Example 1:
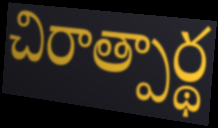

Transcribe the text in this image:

చిరాత్పార్థ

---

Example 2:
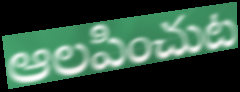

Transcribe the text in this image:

ఆలపించుట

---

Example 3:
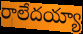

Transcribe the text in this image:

రాలేదయ్యా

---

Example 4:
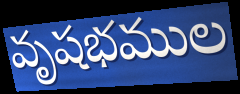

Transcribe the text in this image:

వృషభముల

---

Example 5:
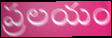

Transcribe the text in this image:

ప్రలయం